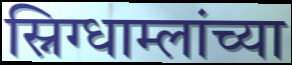
स्निग्धाम्लांच्या